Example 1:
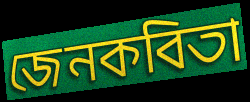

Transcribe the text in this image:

জেনকবিতা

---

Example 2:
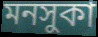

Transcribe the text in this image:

মনসুকা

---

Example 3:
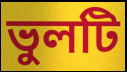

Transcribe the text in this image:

ভুলটি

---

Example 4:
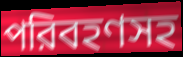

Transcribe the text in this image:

পরিবহণসহ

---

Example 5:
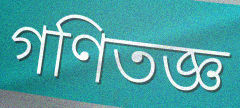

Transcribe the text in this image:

গণিতজ্ঞ